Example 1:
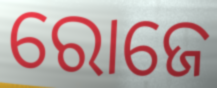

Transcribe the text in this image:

ରୋଜେ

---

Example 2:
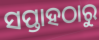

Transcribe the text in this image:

ସପ୍ତାହଠାରୁ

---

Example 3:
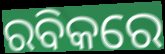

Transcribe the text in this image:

ରବିକରେ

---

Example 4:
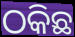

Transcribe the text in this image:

ଠକିଛ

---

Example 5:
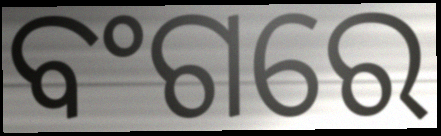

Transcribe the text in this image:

ବଂଗରେ